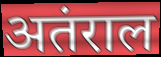
अतंराल